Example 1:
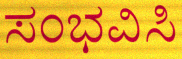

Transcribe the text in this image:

ಸಂಭವಿಸಿ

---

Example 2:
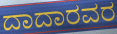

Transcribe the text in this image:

ದಾದಾರವರ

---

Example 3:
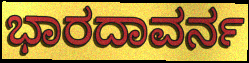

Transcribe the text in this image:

ಭಾರದಾವರ್ನ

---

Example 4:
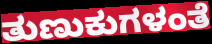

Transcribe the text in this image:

ತುಣುಕುಗಳಂತೆ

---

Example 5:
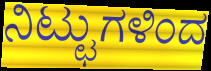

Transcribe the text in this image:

ನಿಟ್ಟುಗಳಿಂದ